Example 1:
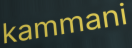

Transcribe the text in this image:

kammani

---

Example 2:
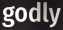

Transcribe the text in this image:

godly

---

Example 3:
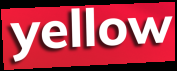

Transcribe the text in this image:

yellow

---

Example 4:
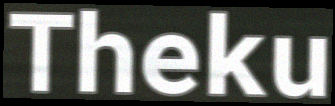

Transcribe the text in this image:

Theku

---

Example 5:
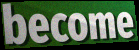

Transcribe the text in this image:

become